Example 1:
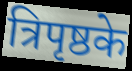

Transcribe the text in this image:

त्रिपृष्ठके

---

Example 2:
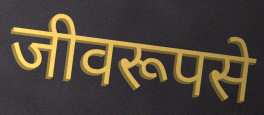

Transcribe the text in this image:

जीवरूपसे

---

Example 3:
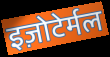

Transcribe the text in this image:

इज़ोटेर्मल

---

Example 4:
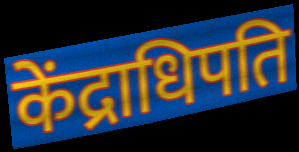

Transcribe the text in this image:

केंद्राधिपति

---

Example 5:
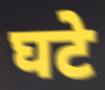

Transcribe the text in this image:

घटे